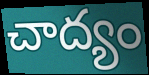
చాద్యం